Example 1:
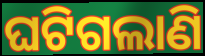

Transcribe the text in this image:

ଘଟିଗଲାଣି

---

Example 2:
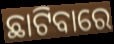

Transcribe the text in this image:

ଛାଟିବାରେ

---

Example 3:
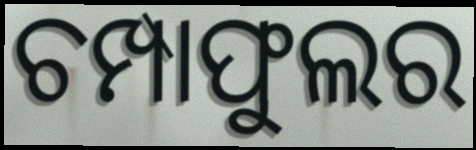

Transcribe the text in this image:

ଚମ୍ପାଫୁଲର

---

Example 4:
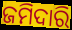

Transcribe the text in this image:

ଜମିଦାରି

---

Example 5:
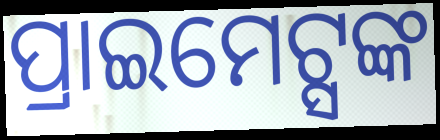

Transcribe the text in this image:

ପ୍ରାଇମେଟ୍ସଙ୍କ